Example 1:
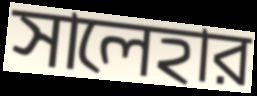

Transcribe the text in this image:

সালেহার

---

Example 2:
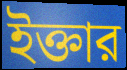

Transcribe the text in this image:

ইক্তার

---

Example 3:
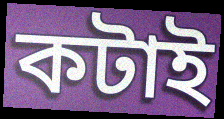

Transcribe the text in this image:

কটাই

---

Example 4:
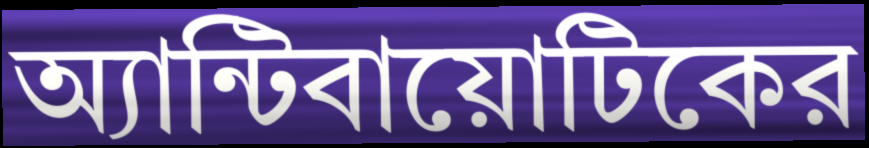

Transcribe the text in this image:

অ্যান্টিবায়োটিকের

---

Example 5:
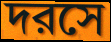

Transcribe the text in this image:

দরসে